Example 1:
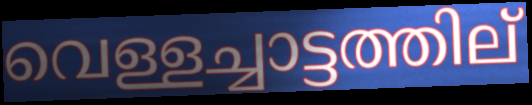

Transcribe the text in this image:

വെള്ളച്ചാട്ടത്തില്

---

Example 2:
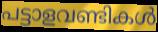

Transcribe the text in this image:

പട്ടാളവണ്ടികൾ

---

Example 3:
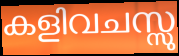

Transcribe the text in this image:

കളിവചസ്സു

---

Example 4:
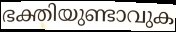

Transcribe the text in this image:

ഭക്തിയുണ്ടാവുക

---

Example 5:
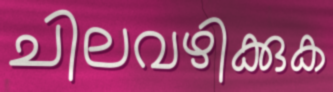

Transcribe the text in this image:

ചിലവഴിക്കുക